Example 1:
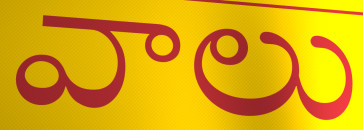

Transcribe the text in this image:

వాలు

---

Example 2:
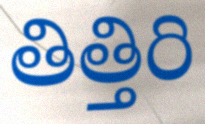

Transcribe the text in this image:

తిత్తిరి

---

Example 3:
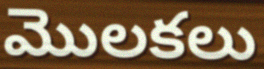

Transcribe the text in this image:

మొలకలు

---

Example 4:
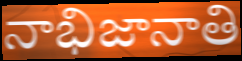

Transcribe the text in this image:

నాభిజానాతి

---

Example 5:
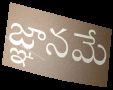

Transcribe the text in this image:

జ్ఞానమే